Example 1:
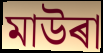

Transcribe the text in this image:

মাউৰা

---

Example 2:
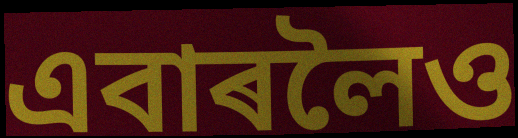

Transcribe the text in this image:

এবাৰলৈও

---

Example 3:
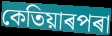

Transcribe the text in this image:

কেতিয়াৰপৰা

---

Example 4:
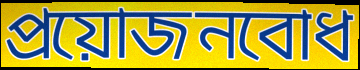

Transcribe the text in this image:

প্ৰয়োজনবোধ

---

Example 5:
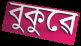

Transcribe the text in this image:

বুকুৱে